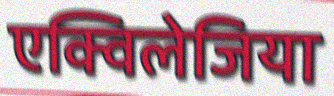
एक्विलेजिया